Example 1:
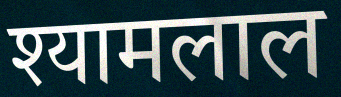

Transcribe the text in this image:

श्यामलाल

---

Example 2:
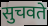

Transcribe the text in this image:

सुचवते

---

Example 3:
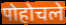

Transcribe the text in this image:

पोहोचले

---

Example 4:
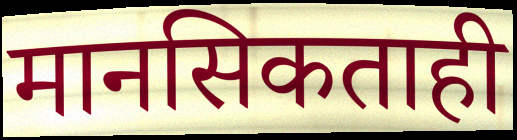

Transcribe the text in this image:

मानसिकताही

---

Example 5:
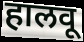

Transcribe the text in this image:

हालवू